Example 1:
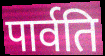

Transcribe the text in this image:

पार्वति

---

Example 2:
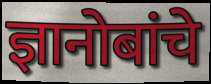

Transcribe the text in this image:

ज्ञानोबांचे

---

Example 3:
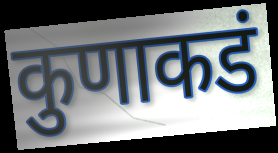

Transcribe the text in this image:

कुणाकडं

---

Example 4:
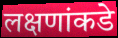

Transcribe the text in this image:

लक्षणांकडे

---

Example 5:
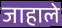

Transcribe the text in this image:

जाहाले